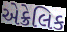
એક્રેલિક